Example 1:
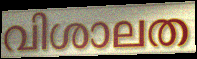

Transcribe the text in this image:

വിശാലത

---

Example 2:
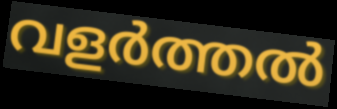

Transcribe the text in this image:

വളർത്തൽ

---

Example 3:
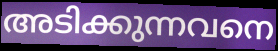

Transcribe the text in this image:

അടിക്കുന്നവനെ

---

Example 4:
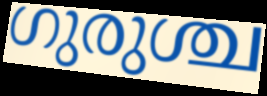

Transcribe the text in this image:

ഗുരുശ്ച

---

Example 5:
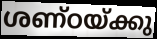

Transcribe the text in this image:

ശണ്ഠയ്ക്കു